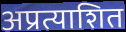
अप्रत्याशित